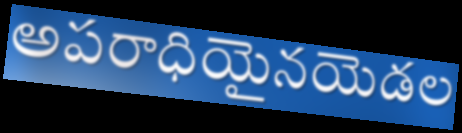
అపరాధియైనయెడల